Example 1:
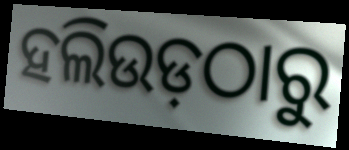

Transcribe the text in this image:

ହଲିଉଡ଼ଠାରୁ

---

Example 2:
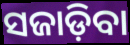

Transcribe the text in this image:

ସଜାଡ଼ିବା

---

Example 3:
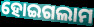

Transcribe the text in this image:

ହୋଇଗଲାମ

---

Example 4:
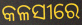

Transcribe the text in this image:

କଳସୀରେ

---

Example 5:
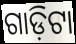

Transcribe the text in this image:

ଗାଡ଼ିଟା